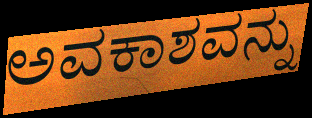
ಅವಕಾಶವನ್ನು